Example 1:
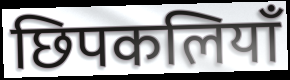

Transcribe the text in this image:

छिपकलियाँ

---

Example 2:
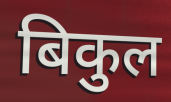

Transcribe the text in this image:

बिकुल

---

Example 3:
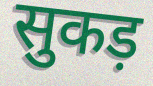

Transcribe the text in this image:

सुकड़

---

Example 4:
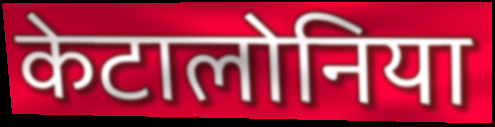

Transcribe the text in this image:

केटालोनिया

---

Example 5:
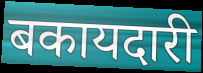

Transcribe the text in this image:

बकायदारी